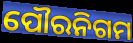
ପୌରନିଗମ